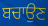
ਬਚਾਉਣ